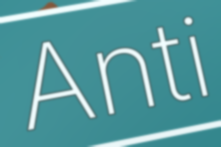
Anti